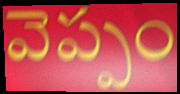
వెప్పం